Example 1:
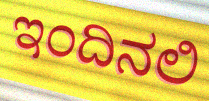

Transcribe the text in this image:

ಇಂದಿನಲಿ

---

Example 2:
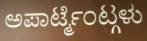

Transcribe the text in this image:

ಅಪಾರ್ಟ್ಮೆಂಟ್ಗಳು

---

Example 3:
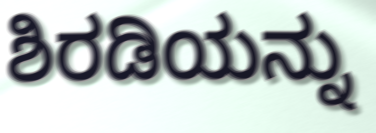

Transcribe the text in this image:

ಶಿರಡಿಯನ್ನು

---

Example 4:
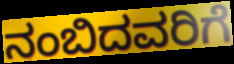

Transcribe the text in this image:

ನಂಬಿದವರಿಗೆ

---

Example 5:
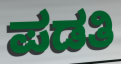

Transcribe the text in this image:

ಪಡತಿ